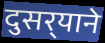
दुसर्‍याने